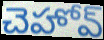
చెహోవ్